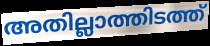
അതില്ലാത്തിടത്ത്